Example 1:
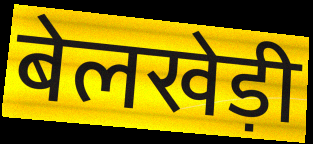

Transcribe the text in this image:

बेलखेड़ी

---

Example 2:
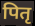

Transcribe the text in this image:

पितृ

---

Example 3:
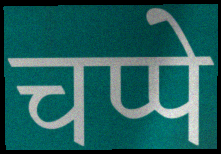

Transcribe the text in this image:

चप्पे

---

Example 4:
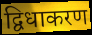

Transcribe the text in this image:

द्विधाकरण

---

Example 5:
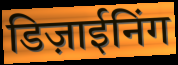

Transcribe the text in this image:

डिज़ाईनिंग